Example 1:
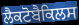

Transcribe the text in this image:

ਲੈਕਟੋਬੈਕਿਲਸ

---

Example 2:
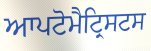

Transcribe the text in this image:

ਆਪਟੋਮੈਟ੍ਰਿਸਟਸ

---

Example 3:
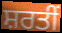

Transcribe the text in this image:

ਸ਼ਰਤੀਂ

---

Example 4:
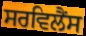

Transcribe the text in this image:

ਸਰਵਿਲੈਂਸ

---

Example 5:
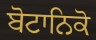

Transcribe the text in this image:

ਬੋਟਾਨਿਕੋ